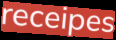
receipes